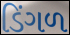
ડિંગળ